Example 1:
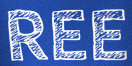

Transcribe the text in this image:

REE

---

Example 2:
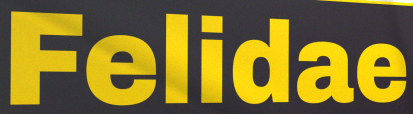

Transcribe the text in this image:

Felidae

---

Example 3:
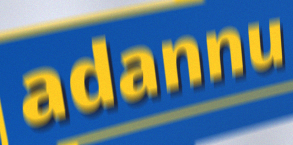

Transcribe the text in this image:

adannu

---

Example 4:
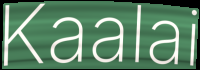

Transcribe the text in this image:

Kaalai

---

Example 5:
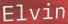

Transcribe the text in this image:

Elvin